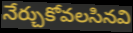
నేర్చుకోవలసినవి